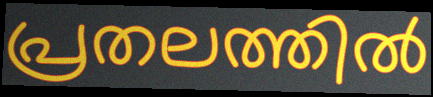
പ്രതലത്തിൽ